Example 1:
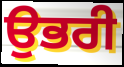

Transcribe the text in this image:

ਉਭਰੀ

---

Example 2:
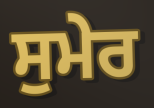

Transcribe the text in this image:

ਸੁਮੇਰ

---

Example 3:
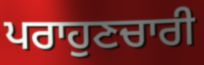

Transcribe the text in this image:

ਪਰਾਹੁਣਚਾਰੀ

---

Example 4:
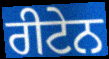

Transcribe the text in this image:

ਰੀਟੇਨ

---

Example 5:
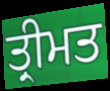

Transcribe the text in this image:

ਤ੍ਰੀਮਤ